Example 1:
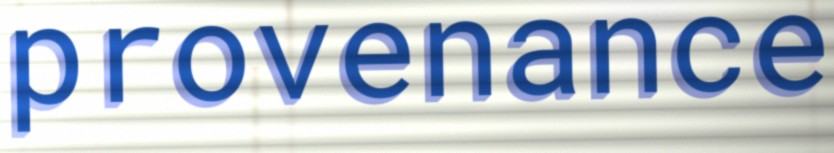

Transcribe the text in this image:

provenance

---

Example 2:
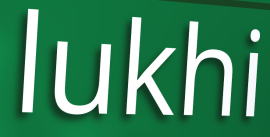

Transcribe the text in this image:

lukhi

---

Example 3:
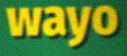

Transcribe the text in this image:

wayo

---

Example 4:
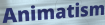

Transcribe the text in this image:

Animatism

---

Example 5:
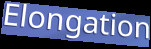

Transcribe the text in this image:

Elongation